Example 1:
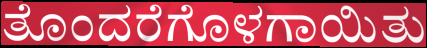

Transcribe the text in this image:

ತೊಂದರೆಗೊಳಗಾಯಿತು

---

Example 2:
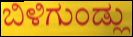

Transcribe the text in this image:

ಬಿಳಿಗುಂಡ್ಲು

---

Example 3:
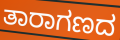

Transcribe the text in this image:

ತಾರಾಗಣದ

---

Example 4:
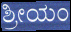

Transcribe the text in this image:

ಶ್ರೀಯಂ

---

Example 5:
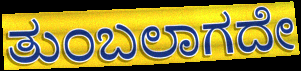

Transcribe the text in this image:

ತುಂಬಲಾಗದೇ